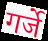
गर्जे